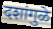
दशांगुळे